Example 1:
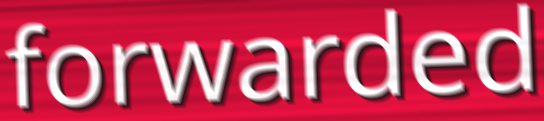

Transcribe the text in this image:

forwarded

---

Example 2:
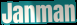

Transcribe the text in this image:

Janman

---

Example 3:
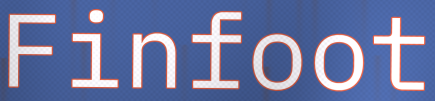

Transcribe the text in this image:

Finfoot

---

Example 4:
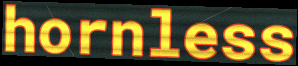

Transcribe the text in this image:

hornless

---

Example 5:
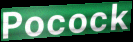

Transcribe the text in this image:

Pocock